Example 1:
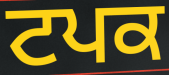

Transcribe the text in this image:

ਟਪਕ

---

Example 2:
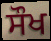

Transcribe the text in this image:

ਸੌਖ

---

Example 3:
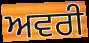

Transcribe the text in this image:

ਅਵਰੀ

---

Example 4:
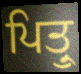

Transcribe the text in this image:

ਪਿਤ੍ਰੁ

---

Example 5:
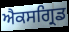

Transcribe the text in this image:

ਐਕਸਗ੍ਰਿਡ